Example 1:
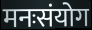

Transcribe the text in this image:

मनःसंयोग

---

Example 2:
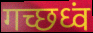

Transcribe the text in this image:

गच्छध्वं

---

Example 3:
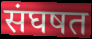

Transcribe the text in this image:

संघषत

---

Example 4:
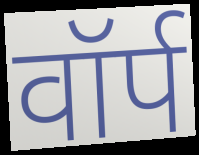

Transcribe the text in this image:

वॉर्प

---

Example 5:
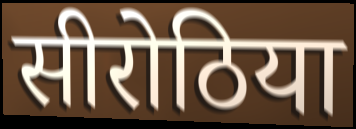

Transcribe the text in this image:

सीरोठिया